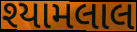
શ્યામલાલ